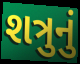
શત્રુનું